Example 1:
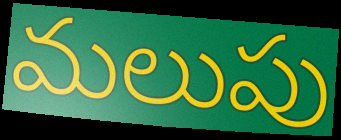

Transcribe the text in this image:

మలుపు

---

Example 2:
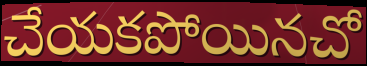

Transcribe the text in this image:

చేయకపోయినచో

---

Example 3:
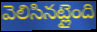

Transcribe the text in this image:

వెలిసినట్లైంది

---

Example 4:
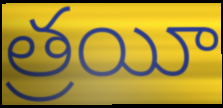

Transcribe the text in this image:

త్రయీ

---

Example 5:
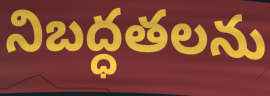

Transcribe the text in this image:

నిబద్ధతలను